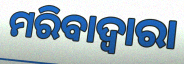
ମରିବାଦ୍ୱାରା